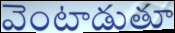
వెంటాడుతూ